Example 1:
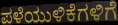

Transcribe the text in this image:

ಪಳೆಯುಳಿಕೆಗಳಿಗೆ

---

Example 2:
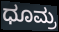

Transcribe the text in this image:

ಧೂಮ್ರ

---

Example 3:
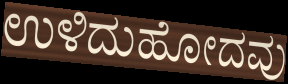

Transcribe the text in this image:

ಉಳಿದುಹೋದವು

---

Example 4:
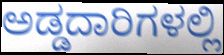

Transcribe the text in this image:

ಅಡ್ಡದಾರಿಗಳಲ್ಲಿ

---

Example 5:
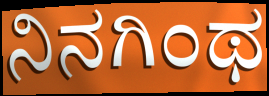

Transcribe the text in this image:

ನಿನಗಿಂಥ